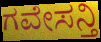
ಗವೇಸನ್ತಿ